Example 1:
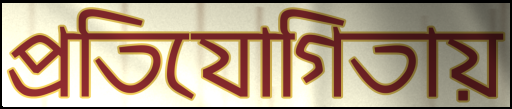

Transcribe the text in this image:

প্রতিযোগিতায়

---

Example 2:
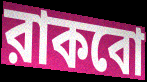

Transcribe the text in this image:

রাকবো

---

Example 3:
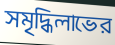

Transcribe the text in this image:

সমৃদ্ধিলাভের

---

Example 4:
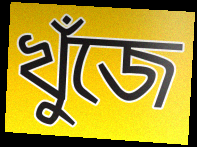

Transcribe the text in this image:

খুঁজে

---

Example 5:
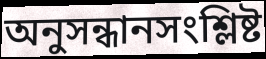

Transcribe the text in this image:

অনুসন্ধানসংশ্লিষ্ট